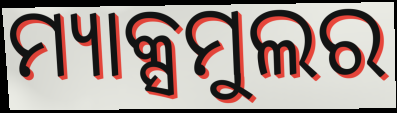
ମ୍ୟାକ୍ସମୁଲର